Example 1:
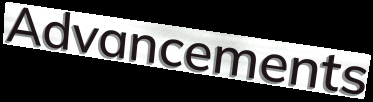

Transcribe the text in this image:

Advancements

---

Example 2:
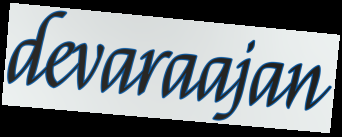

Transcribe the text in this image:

devaraajan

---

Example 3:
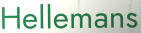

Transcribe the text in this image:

Hellemans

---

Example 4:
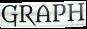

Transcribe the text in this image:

GRAPH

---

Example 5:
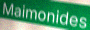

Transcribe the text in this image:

Maimonides